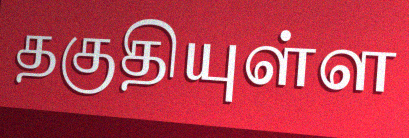
தகுதியுள்ள